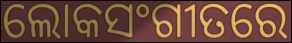
ଲୋକସଂଗୀତରେ